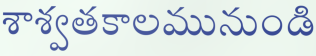
శాశ్వతకాలమునుండి